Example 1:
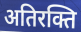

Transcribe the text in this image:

अतिरक्ति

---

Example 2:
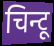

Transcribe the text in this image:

चिन्टू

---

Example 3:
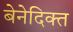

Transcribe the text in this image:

बेनेदिक्त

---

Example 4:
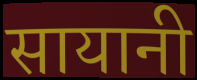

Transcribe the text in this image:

सायानी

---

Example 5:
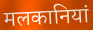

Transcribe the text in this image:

मलकानियां